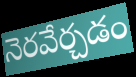
నెరవేర్చడం